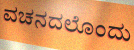
ವಚನದಲೊಂದು